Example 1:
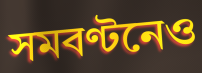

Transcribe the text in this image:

সমবণ্টনেও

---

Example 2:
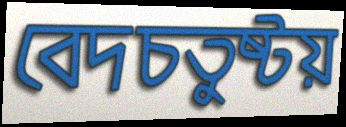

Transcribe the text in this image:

বেদচতুষ্টয়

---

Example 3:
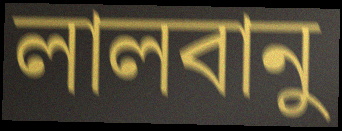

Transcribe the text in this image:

লালবানু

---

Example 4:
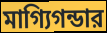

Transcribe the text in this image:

মাগ্যিগন্ডার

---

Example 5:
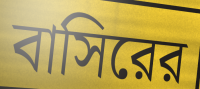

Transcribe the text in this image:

বাসিরের